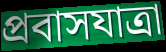
প্রবাসযাত্রা